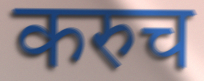
करुच